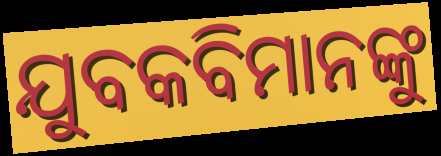
ଯୁବକବିମାନଙ୍କୁ